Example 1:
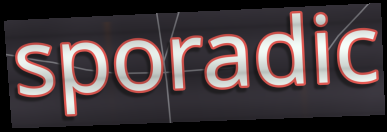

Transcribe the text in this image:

sporadic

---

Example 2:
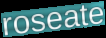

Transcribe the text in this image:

roseate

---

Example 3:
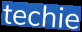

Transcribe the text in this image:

techie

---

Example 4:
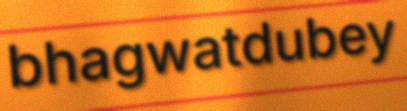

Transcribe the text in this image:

bhagwatdubey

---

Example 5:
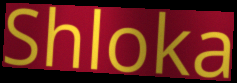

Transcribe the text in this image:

Shloka